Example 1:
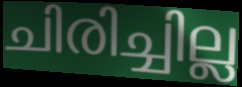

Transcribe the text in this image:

ചിരിച്ചില്ല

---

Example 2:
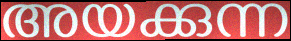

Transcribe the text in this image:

അയക്കുന്ന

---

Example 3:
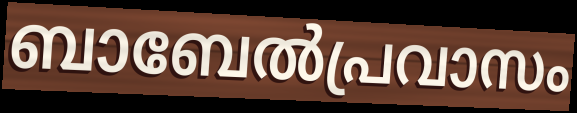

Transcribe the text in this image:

ബാബേൽപ്രവാസം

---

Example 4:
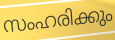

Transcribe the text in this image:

സംഹരിക്കും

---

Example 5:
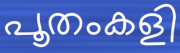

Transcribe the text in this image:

പൂതംകളി